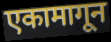
एकामागून